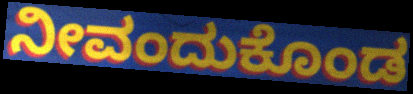
ನೀವಂದುಕೊಂಡ